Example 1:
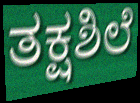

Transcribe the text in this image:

ತಕ್ಷಶಿಲೆ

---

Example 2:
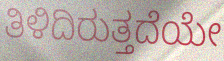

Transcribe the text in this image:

ತಿಳಿದಿರುತ್ತದೆಯೇ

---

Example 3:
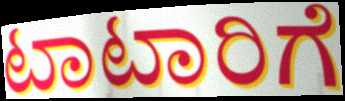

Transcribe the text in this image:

ಟಾಟಾರಿಗೆ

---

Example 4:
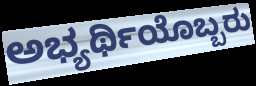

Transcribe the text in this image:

ಅಭ್ಯರ್ಥಿಯೊಬ್ಬರು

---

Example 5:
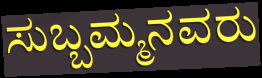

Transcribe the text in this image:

ಸುಬ್ಬಮ್ಮನವರು